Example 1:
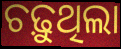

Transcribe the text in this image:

ଚଢ଼ୁଥିଲା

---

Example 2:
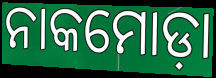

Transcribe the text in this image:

ନାକମୋଡ଼ା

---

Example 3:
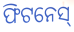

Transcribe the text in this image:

ଫିଟନେସ୍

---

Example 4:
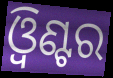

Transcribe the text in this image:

ଓ୍ଵିଣ୍ଟର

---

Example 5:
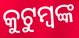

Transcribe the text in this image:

କୁଟୁମ୍ବଙ୍କ